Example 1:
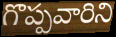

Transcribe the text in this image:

గొప్పవారిని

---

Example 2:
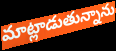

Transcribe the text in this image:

మాట్లాడుతున్నాను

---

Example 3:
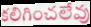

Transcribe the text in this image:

కలిగించలేవు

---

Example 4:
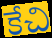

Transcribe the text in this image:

కేచి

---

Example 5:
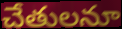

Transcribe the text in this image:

చేతులనూ